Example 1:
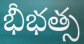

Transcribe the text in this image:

భీభత్స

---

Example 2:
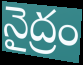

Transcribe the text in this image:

నైద్రం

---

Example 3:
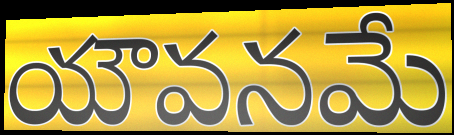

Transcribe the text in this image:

యౌవనమే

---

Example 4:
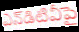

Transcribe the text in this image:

ఎన్‌డిటివీపై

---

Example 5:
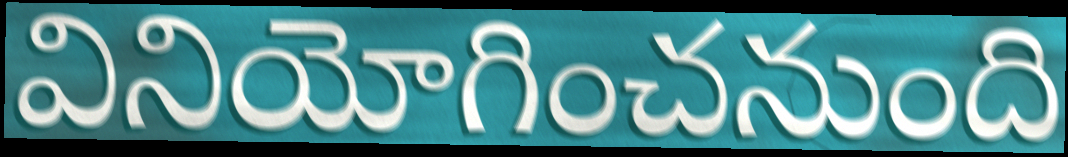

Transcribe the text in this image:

వినియోగించనుంది